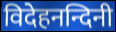
विदेहनन्दिनी